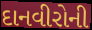
દાનવીરોની